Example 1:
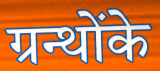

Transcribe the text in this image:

ग्रन्थोंके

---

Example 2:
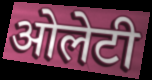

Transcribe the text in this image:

ओलेटी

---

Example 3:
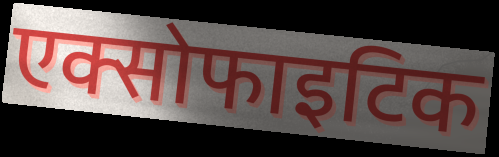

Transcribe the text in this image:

एक्सोफाइटिक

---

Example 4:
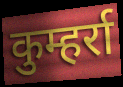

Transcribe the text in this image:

कुम्हर्रा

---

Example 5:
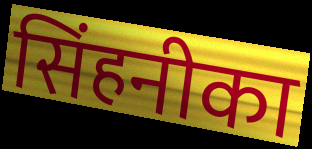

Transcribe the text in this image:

सिंहनीका